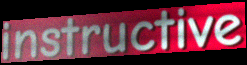
instructive